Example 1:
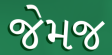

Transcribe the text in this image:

જેમજ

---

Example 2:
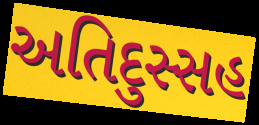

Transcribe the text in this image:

અતિદુસ્સહ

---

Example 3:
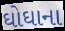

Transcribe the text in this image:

ઘોઘાના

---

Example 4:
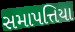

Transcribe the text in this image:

સમાપત્તિયા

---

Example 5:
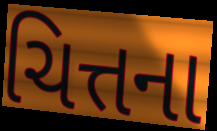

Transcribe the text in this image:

ચિત્તના